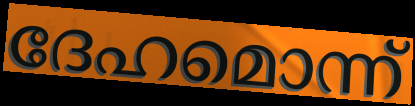
ദേഹമൊന്ന്